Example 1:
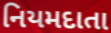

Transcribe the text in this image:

નિયમદાતા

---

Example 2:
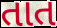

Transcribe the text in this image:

તાત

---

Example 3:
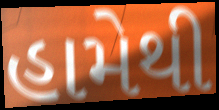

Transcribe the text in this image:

હામેથી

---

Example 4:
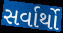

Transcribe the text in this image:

સર્વાર્થો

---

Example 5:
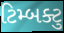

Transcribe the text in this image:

ટિમ્બક્ટુ